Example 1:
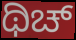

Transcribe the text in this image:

ಥಿಚ್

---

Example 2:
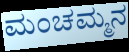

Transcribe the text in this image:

ಮಂಚಮ್ಮನ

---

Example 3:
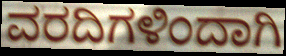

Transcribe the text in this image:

ವರದಿಗಳಿಂದಾಗಿ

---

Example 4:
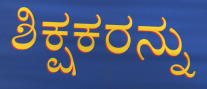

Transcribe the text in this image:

ಶಿಕ್ಷಕರನ್ನು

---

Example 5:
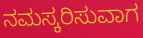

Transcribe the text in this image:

ನಮಸ್ಕರಿಸುವಾಗ